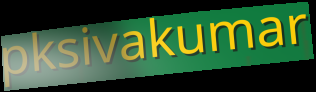
pksivakumar